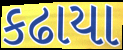
કઢાયા